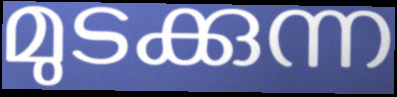
മുടക്കുന്ന